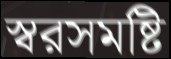
স্বরসমষ্টি